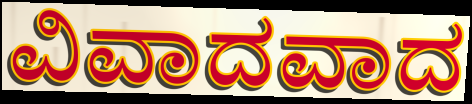
ವಿವಾದವಾದ